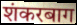
शंकरबाग